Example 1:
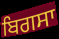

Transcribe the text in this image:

ਬਿਗਸਾ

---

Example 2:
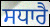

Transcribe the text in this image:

ਸਧਾਰੈ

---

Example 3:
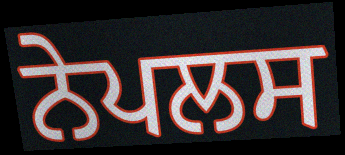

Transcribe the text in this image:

ਨੇਪਲਸ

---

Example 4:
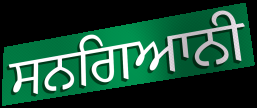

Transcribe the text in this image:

ਸਨਗਿਆਨੀ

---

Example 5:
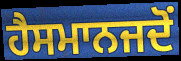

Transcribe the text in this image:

ਹੈਸਮਾਨਜਦੋਂ